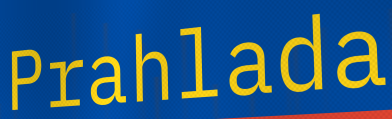
Prahlada